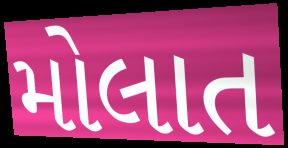
મોલાત